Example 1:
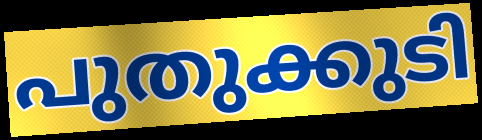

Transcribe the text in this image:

പുതുക്കുടി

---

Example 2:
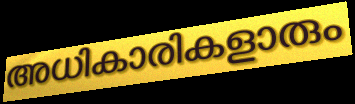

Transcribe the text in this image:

അധികാരികളാരും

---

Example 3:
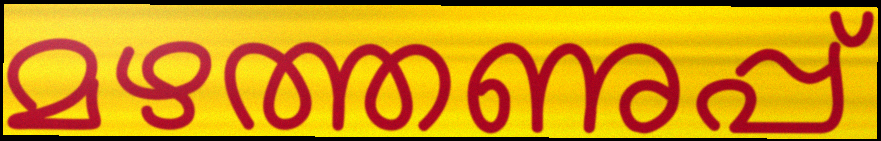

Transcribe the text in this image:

മഴത്തണുപ്പ്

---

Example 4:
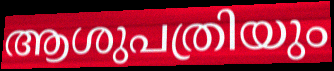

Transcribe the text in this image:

ആശുപത്രിയും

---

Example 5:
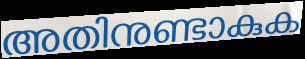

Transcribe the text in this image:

അതിനുണ്ടാകുക